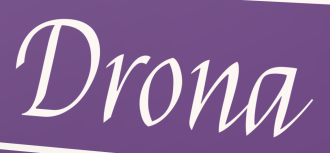
Drona